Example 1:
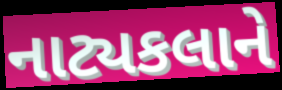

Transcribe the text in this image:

નાટ્યકલાને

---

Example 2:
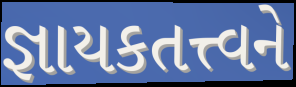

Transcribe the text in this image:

જ્ઞાયકતત્ત્વને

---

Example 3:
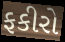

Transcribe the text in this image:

ફકીરો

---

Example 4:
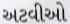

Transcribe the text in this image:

અટવીઓ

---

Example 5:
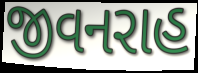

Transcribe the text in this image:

જીવનરાહ